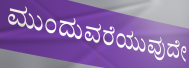
ಮುಂದುವರೆಯುವುದೇ